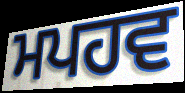
ਮਪਹਵ